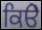
ਕਿੳੇ